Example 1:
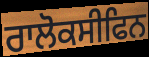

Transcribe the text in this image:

ਰਾਲੋਕਸੀਫਿਨ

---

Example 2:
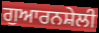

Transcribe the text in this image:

ਗੁਆਰਨਸ਼ੇਲੀ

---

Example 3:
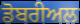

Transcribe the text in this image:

ਡੋਬਰੀਅਲ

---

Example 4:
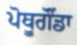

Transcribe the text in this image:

ਪੋਥੂਗੌਂਡਾ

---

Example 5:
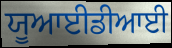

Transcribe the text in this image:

ਯੂਆਈਡੀਆਈ